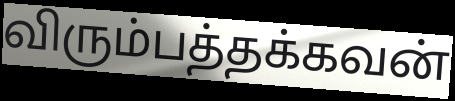
விரும்பத்தக்கவன்